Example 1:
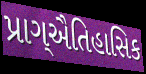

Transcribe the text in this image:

પ્રાગ્ઐતિહાસિક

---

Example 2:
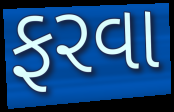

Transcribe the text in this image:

ફરવા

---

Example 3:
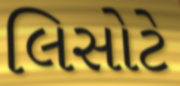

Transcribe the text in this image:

લિસોટે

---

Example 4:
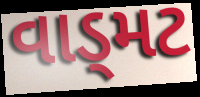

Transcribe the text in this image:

વાડ્મટ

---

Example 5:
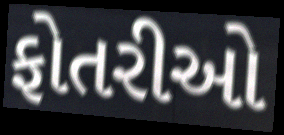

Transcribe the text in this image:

ફોતરીઓ